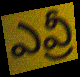
ఎవ్రీ